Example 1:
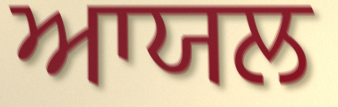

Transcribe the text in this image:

ਆਯਲ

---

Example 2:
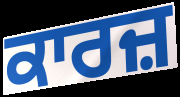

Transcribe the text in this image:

ਕਾਰਜ਼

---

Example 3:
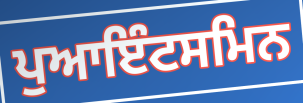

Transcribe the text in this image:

ਪੁਆਇੰਟਸਮਿਨ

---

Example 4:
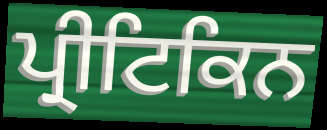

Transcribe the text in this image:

ਪ੍ਰੀਟਿਕਿਨ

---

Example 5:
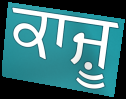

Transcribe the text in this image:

ਕਾਜ਼ੂ